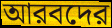
আরবদের